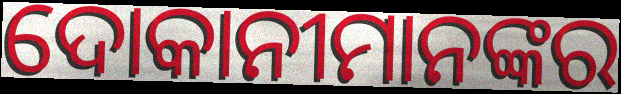
ଦୋକାନୀମାନଙ୍କର